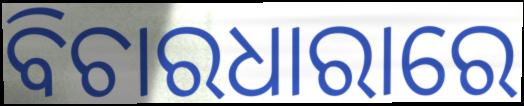
ବିଚାରଧାରାରେ